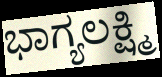
ಭಾಗ್ಯಲಕ್ಷ್ಮಿ